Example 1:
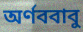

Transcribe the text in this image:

অর্ণববাবু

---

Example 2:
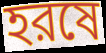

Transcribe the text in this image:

হরষে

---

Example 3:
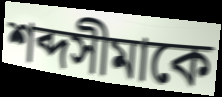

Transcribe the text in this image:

শব্দসীমাকে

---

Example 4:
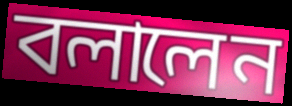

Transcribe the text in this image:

বলালেন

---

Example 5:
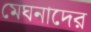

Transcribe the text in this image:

মেঘনাদের